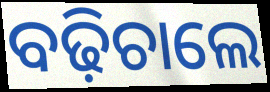
ବଢ଼ିଚାଲେ